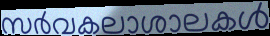
സർവകലാശാലകൾ